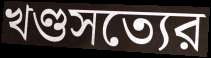
খণ্ডসত্যের